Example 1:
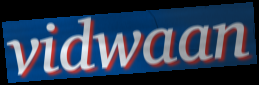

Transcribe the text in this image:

vidwaan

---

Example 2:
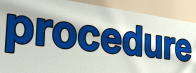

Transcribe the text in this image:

procedure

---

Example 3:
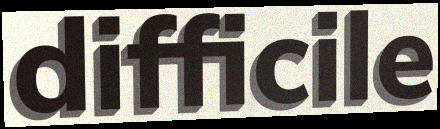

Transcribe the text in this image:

difficile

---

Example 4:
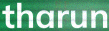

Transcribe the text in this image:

tharun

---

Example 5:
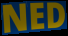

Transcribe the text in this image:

NED